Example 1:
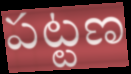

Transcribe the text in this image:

పట్టణ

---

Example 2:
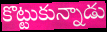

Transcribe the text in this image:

కొట్టుకున్నాడు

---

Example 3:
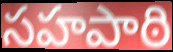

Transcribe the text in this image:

సహపాఠి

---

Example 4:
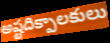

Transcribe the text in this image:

అష్టదిక్పాలకులు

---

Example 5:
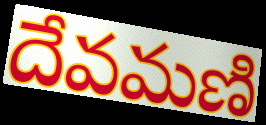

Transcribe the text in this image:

దేవమణి